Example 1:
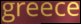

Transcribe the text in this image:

greece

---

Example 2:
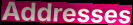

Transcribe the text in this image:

Addresses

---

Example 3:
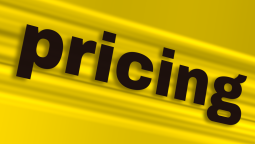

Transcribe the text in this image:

pricing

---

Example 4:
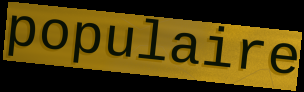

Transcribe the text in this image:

populaire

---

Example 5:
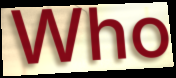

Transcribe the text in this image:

Who